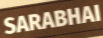
SARABHAI